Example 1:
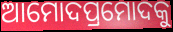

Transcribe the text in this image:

ଆମୋଦପ୍ରମୋଦକୁ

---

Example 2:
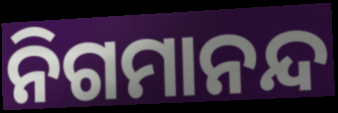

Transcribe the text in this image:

ନିଗମାନନ୍ଦ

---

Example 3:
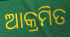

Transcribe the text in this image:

ଆକ୍ରମିତ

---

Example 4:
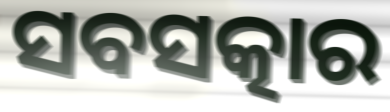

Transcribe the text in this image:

ସବସତ୍କାର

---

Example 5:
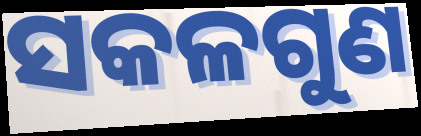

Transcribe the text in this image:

ସକଳଗୁଣ